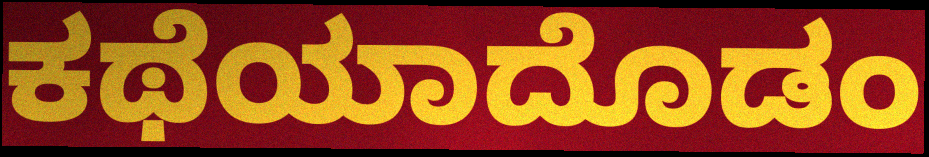
ಕಥೆಯಾದೊಡಂ